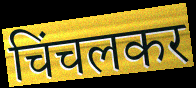
चिंचलकर